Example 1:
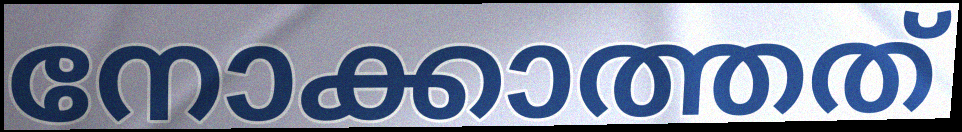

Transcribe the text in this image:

നോക്കാത്തത്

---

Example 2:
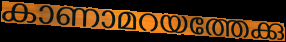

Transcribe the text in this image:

കാണാമറയത്തേക്കു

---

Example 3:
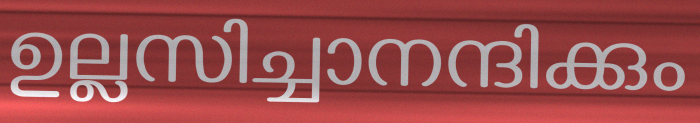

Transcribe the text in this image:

ഉല്ലസിച്ചാനന്ദിക്കും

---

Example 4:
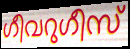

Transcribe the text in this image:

ഗീവറുഗീസ്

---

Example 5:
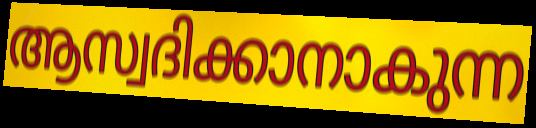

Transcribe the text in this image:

ആസ്വദിക്കാനാകുന്ന